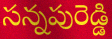
సన్నపురెడ్డి